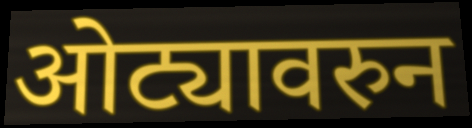
ओट्यावरुन